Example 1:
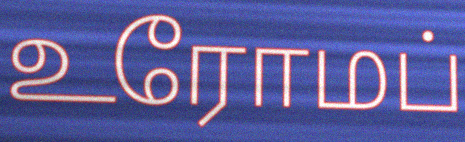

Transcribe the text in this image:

உரோமப்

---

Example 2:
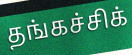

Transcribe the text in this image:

தங்கச்சிக்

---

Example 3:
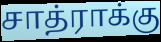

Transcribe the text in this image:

சாத்ராக்கு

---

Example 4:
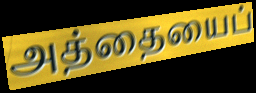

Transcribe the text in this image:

அத்தையைப்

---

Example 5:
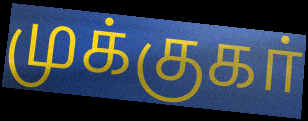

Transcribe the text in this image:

முக்குகர்